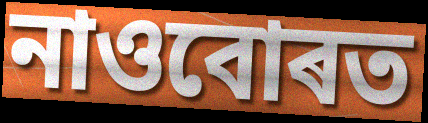
নাওবোৰত